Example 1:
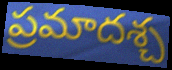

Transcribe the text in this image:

ప్రమాదశ్చ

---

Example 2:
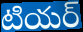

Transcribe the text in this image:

టియర్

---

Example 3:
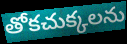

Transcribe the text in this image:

తోకచుక్కలను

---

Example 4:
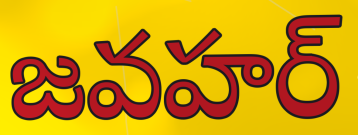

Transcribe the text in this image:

జవహర్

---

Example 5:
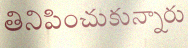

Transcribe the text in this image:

తినిపించుకున్నారు